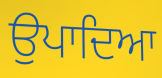
ਉਪਾਦਿਆ